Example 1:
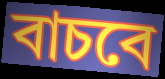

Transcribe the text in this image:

বাচবে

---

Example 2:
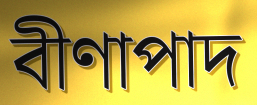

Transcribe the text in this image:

বীণাপাদ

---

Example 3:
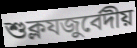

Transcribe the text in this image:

শুক্লযজুর্বেদীয়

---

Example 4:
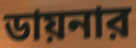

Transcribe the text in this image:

ডায়নার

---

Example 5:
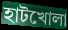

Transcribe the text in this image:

হাটখোলা